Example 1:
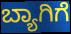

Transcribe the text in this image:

ಬ್ಯಾಗಿಗೆ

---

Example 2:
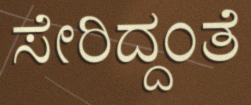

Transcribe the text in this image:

ಸೇರಿದ್ದಂತೆ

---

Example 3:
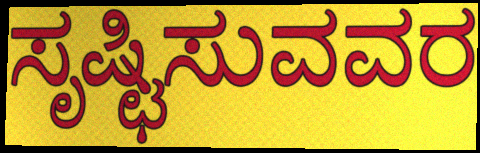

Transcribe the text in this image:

ಸೃಷ್ಟಿಸುವವರ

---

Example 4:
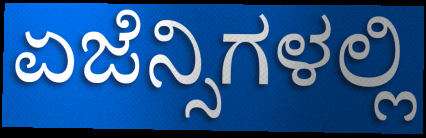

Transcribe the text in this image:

ಏಜೆನ್ಸಿಗಳಲ್ಲಿ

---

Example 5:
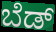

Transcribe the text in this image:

ಬೆಡ್